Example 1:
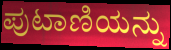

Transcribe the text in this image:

ಪುಟಾಣಿಯನ್ನು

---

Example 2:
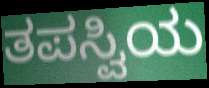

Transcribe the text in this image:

ತಪಸ್ವಿಯ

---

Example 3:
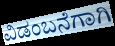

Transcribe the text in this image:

ವಿಡಂಬನೆಗಾಗಿ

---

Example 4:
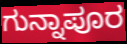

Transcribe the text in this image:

ಗುನ್ನಾಪೂರ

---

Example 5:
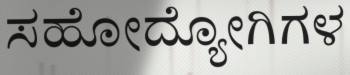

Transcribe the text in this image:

ಸಹೋದ್ಯೋಗಿಗಳ